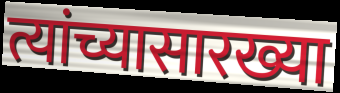
त्यांच्यासारख्या